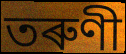
তৰুণী